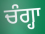
ਚੰਗ੍ਹਾ